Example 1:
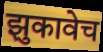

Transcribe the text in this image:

झुकावेच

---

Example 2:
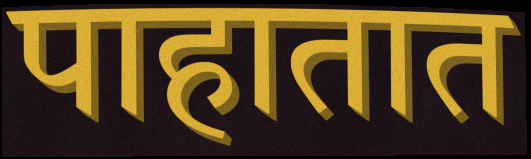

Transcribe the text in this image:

पाहातात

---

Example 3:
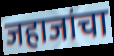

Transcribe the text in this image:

जहाजांचा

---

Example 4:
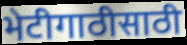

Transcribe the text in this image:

भेटीगाठीसाठी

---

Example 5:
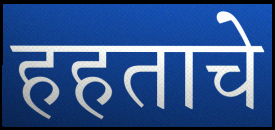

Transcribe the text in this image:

हहताचे